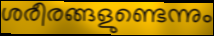
ശരീരങ്ങളുണ്ടെന്നും